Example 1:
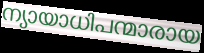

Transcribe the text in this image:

ന്യായാധിപന്മാരായ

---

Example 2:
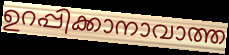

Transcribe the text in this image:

ഉറപ്പിക്കാനാവാത്ത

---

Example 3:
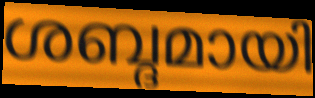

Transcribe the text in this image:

ശബ്ദമായി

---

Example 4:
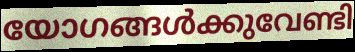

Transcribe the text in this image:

യോഗങ്ങൾക്കുവേണ്ടി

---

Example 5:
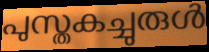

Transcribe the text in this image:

പുസ്തകച്ചുരുൾ